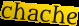
chache